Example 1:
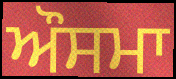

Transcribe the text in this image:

ਔਸਮਾ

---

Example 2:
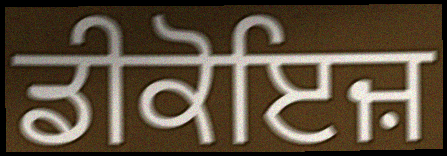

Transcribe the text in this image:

ਡੀਕੋਇਜ਼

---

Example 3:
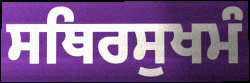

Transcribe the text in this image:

ਸਥਿਰਸੁਖਮੰ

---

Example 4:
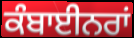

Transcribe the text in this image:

ਕੰਬਾਈਨਰਾਂ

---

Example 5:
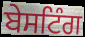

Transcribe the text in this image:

ਬੇਸਟਿੰਗ